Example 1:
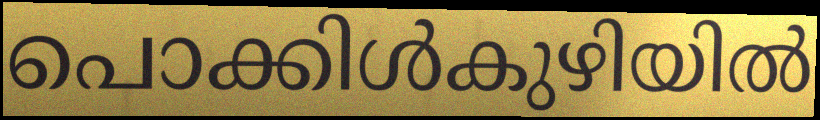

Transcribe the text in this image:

പൊക്കിൾകുഴിയിൽ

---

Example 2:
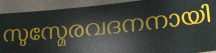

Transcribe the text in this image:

സുസ്മേരവദനനായി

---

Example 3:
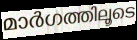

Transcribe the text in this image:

മാർഗത്തിലൂടെ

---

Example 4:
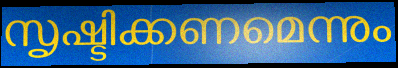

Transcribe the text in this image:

സൃഷ്ടിക്കണമെന്നും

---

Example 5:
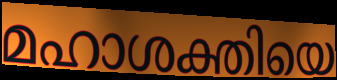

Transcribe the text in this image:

മഹാശക്തിയെ